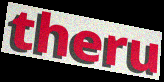
theru